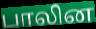
பாலின